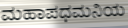
ಮಹಾಪಧಮನಿಯ